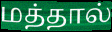
மத்தால்